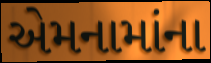
એમનામાંના